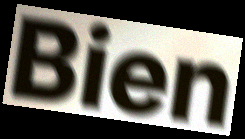
Bien